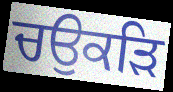
ਚਉਕੜਿ